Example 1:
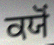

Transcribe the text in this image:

ਕਯੋਂ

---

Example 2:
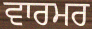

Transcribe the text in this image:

ਵਾਰਮਰ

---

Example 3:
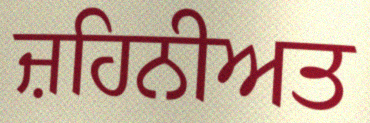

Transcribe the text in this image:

ਜ਼ਹਿਨੀਅਤ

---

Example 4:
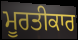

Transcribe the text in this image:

ਮੂਰਤੀਕਾਰ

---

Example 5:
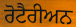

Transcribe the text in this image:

ਰੋਟੈਰੀਅਨ